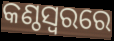
କଣ୍ଠସ୍ୱରରେ